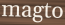
magto